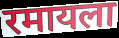
रमायला